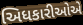
અિધકારીઓએ